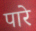
पारे